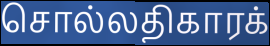
சொல்லதிகாரக்